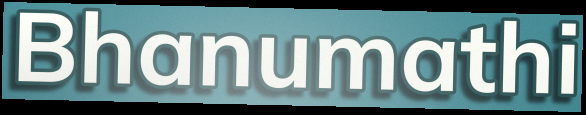
Bhanumathi